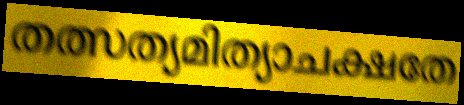
തത്സത്യമിത്യാചക്ഷതേ